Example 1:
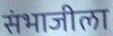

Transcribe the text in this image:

संभाजीला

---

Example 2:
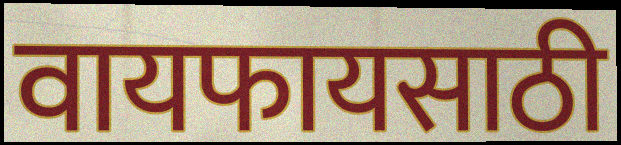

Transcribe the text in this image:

वायफायसाठी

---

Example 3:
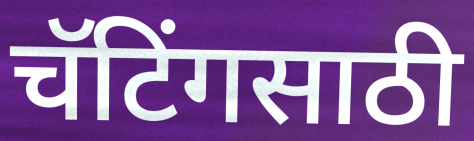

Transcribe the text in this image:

चॅटिंगसाठी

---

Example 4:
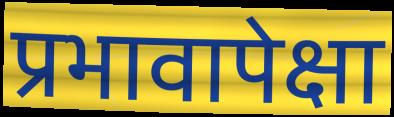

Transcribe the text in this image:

प्रभावापेक्षा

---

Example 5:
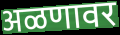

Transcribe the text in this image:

अळणावर